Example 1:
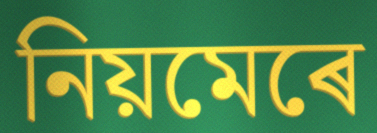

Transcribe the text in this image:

নিয়মেৰে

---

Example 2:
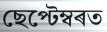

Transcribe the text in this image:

ছেপ্টেম্বৰত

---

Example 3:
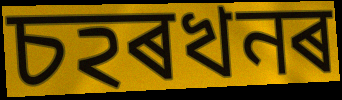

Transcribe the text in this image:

চহৰখনৰ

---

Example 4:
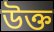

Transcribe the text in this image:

উক্ত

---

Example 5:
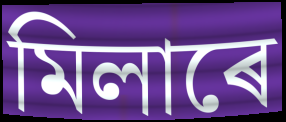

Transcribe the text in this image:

মিলাৰে